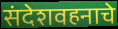
संदेशवहनाचे